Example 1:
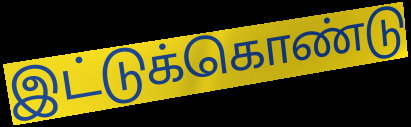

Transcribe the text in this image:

இட்டுக்கொண்டு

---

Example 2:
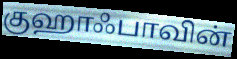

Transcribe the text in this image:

குஹாஃபாவின்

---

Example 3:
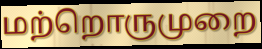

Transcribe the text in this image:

மற்றொருமுறை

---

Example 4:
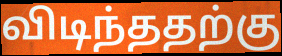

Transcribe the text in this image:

விடிந்ததற்கு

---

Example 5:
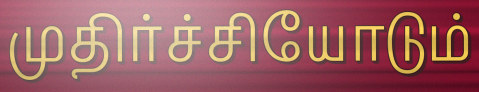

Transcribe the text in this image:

முதிர்ச்சியோடும்